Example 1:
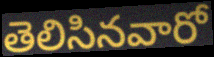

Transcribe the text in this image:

తెలిసినవారో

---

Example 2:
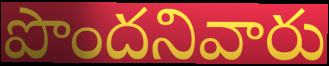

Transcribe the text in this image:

పొందనివారు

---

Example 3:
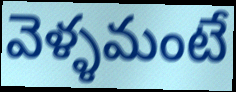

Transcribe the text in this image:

వెళ్ళమంటే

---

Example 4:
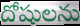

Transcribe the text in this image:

దోషులను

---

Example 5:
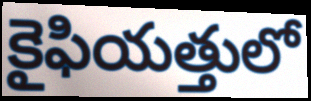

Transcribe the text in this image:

కైఫియత్తులో